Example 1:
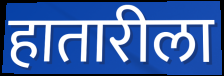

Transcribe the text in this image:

हातारीला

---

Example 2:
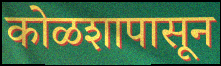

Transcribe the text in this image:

कोळशापासून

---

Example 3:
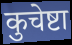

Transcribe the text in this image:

कुचेष्टा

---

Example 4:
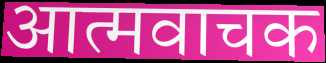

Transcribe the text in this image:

आत्मवाचक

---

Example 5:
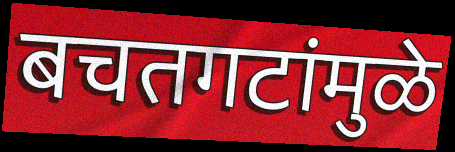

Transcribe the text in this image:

बचतगटांमुळे